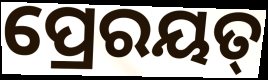
ପ୍ରେରୟତ୍